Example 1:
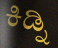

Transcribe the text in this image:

ಕಿಡ್ನಿ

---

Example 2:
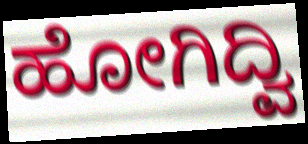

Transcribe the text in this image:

ಹೋಗಿದ್ವಿ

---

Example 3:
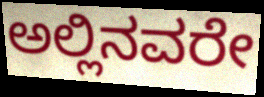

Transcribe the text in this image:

ಅಲ್ಲಿನವರೇ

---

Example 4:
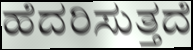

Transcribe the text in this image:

ಹೆದರಿಸುತ್ತದೆ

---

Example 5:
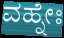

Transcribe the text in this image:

ವಹ್ನೇಃ